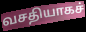
வசதியாகச்